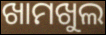
ଖାମଖୁଲ